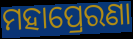
ମହାପ୍ରେରଣା